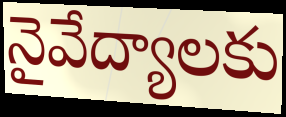
నైవేద్యాలకు